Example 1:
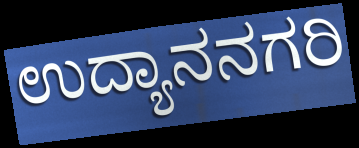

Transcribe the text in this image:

ಉದ್ಯಾನನಗರಿ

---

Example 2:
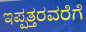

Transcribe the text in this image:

ಇಪ್ಪತ್ತರವರೆಗೆ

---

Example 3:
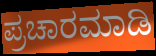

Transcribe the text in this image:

ಪ್ರಚಾರಮಾಡಿ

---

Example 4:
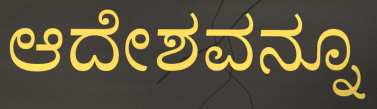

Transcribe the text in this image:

ಆದೇಶವನ್ನೂ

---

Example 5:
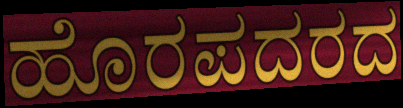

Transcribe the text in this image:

ಹೊರಪದರದ